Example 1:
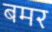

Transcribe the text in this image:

बमर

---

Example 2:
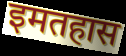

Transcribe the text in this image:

इमतहास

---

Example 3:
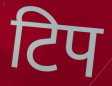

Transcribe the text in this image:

टिप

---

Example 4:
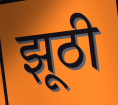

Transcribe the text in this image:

झूठी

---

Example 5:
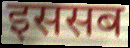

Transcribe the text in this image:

इससब